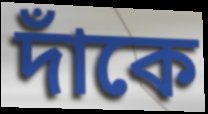
দাঁকে